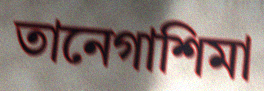
তানেগাশিমা